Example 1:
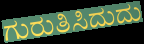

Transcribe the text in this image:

ಗುರುತಿಸಿದುದು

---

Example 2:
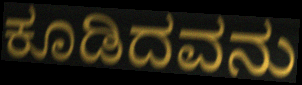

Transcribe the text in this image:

ಕೂಡಿದವನು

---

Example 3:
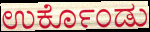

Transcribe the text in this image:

ಉರ್ಕೊಂಡು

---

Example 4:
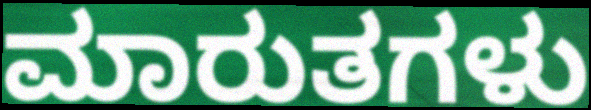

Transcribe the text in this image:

ಮಾರುತಗಳು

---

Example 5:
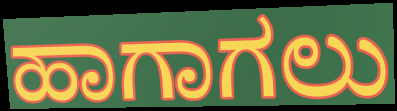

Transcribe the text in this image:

ಹಾಗಾಗಲು